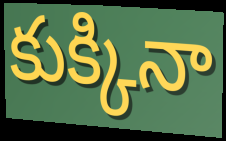
కుక్కినా